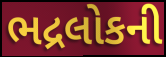
ભદ્રલોકની